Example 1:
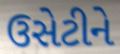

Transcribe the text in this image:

ઉસેટીને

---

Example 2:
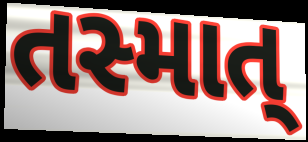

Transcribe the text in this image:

તસ્માત્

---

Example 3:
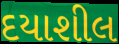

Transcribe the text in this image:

દયાશીલ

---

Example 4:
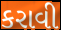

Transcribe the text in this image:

કરાવી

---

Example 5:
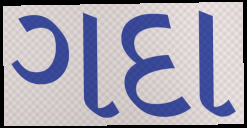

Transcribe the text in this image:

ગદા